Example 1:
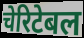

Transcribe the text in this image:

चेरिटेबल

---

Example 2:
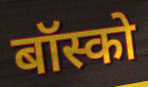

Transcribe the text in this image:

बॉस्को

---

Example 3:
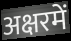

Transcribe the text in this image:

अक्षरमें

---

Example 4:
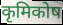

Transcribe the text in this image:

कृमिकोष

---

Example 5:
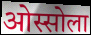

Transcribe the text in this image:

ओस्सोला